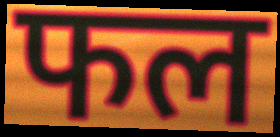
फल